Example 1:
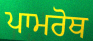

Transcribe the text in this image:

ਪਾਮਰੋਥ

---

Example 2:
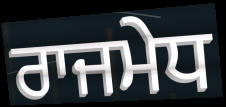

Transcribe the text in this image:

ਰਾਜਮੇਧ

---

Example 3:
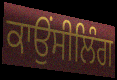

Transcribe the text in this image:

ਕਾਉਂਸੀਲਿੰਗ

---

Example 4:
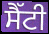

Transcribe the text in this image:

ਸੈੱਟੀ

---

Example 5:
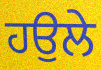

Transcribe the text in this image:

ਹਉਲੇ